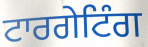
ਟਾਰਗੇਟਿੰਗ